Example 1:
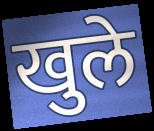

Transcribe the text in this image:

खुले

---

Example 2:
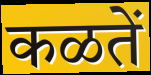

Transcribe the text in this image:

कळतें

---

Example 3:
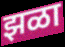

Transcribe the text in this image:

झळा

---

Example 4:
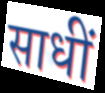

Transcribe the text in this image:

साधीं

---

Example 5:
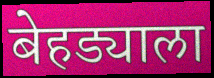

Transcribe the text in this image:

बेहड्याला